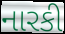
નારકી